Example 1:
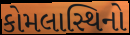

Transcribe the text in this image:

કોમલાસ્થિનો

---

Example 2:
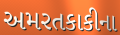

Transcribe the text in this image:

અમરતકાકીના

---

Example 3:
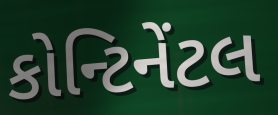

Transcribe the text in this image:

કોન્ટિનેંટલ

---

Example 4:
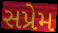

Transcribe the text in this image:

સપ્રેમ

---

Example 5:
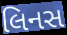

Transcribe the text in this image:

લિનસ